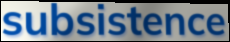
subsistence